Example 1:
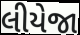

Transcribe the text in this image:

લીયેજા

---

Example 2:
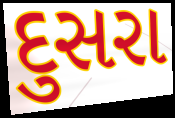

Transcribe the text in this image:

દુસરા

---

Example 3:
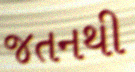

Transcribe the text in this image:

જતનથી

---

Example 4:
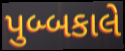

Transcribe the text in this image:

પુબ્બકાલે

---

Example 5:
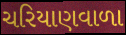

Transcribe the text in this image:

ચરિયાણવાળા